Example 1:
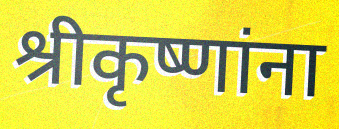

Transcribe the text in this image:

श्रीकृष्णांना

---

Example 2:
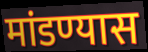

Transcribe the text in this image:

मांडण्यास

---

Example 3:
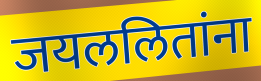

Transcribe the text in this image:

जयललितांना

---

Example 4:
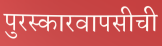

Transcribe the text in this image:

पुरस्कारवापसीची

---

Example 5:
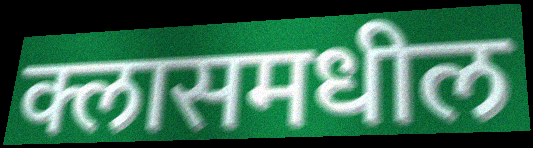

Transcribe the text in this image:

क्लासमधील